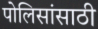
पोलिसांसाठी